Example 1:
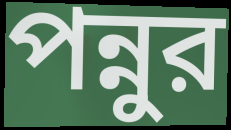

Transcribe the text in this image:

পন্নুর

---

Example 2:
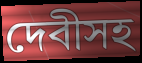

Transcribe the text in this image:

দেবীসহ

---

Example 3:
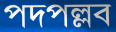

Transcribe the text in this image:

পদপল্লব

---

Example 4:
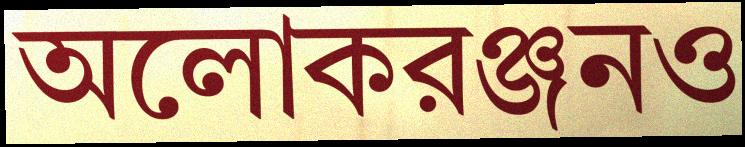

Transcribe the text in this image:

অলোকরঞ্জনও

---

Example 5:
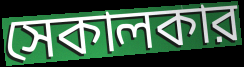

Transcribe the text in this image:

সেকালকার